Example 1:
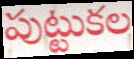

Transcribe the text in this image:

పుట్టుకల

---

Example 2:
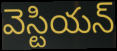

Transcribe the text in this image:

వెస్టియన్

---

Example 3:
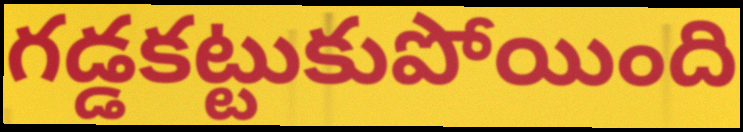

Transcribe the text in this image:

గడ్డకట్టుకుపోయింది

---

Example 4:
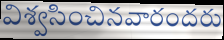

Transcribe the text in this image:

విశ్వసించినవారందరు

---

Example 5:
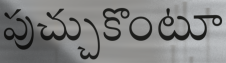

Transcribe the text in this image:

పుచ్చుకొంటూ